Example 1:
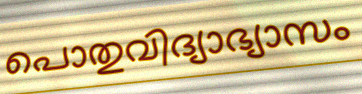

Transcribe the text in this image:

പൊതുവിദ്യാഭ്യാസം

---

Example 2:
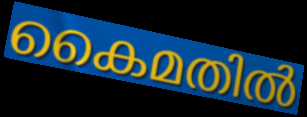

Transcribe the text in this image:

കൈമതിൽ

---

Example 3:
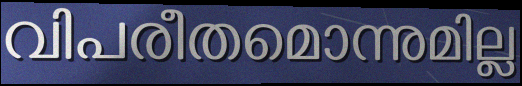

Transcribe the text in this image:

വിപരീതമൊന്നുമില്ല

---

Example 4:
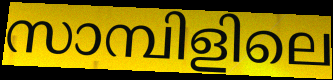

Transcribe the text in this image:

സാമ്പിളിലെ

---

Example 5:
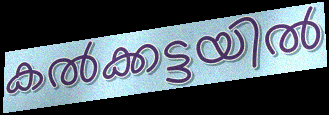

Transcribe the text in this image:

കൽക്കട്ടയിൽ